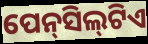
ପେନ୍‍ସିଲ୍‍ଟିଏ